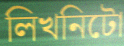
লিখনিটো